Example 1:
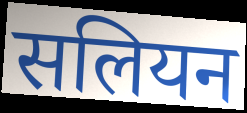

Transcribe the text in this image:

सलियन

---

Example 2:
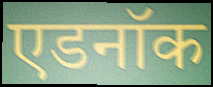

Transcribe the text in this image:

एडनॉक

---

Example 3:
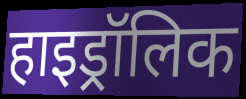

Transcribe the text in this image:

हाइड्रॉलिक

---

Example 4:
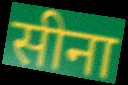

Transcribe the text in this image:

सीना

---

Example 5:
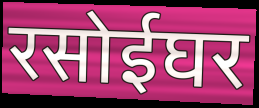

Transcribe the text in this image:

रसोईघर